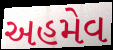
અહમેવ